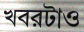
খবরটাও